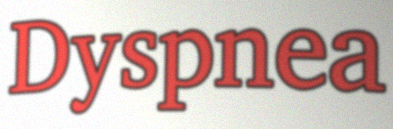
Dyspnea